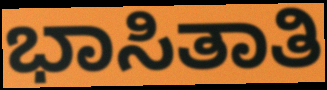
ಭಾಸಿತಾತಿ